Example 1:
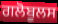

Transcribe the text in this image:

ਗਲੋਬੂਲਸ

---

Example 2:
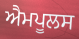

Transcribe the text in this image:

ਐਮਪੂਲਸ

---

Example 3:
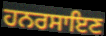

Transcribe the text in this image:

ਹਨਰਸਾਇਣ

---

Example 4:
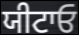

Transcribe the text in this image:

ਯੀਟਾਓ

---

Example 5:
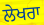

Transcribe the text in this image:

ਲੇਖਰਾ